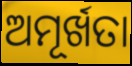
ଅମୂର୍ଖତା